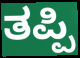
ತಪ್ಪಿ